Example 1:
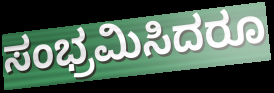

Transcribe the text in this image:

ಸಂಭ್ರಮಿಸಿದರೂ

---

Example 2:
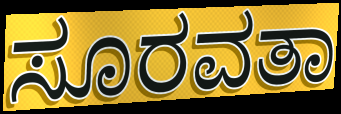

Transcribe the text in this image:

ಸೂರವತಾ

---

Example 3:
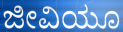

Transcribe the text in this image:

ಜೀವಿಯೂ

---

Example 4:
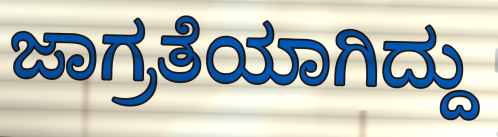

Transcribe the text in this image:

ಜಾಗ್ರತೆಯಾಗಿದ್ದು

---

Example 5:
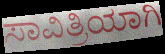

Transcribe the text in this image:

ಸಾವಿತ್ರಿಯಾಗಿ